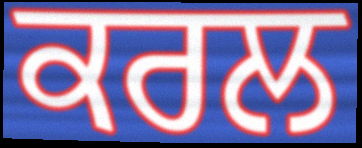
ਕਰਲ